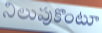
నిలుపుకొంటూ